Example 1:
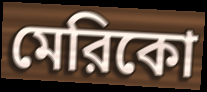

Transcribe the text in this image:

মেরিকো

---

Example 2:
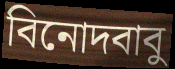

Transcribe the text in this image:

বিনোদবাবু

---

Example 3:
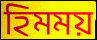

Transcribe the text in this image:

হিমময়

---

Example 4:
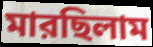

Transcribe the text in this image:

মারছিলাম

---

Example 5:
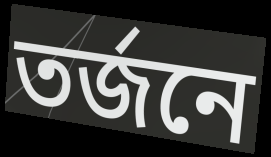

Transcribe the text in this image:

তর্জনে